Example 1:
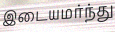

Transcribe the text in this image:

இடையமர்ந்து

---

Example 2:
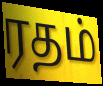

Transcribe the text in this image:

ரதம்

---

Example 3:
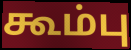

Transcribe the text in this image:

கூம்பு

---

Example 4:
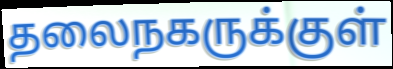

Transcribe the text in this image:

தலைநகருக்குள்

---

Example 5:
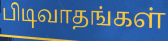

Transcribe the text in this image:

பிடிவாதங்கள்